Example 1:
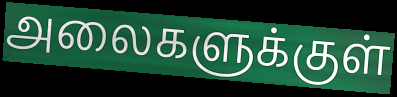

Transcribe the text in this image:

அலைகளுக்குள்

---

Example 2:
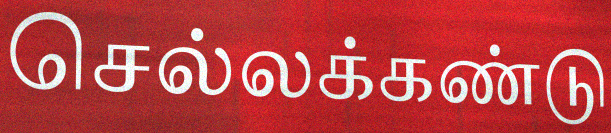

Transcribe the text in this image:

செல்லக்கண்டு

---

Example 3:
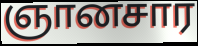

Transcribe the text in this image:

ஞானசார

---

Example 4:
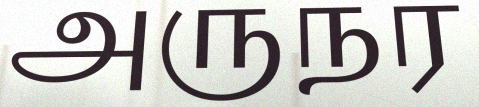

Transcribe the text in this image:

அருநர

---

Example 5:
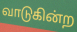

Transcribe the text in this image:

வாடுகின்ற